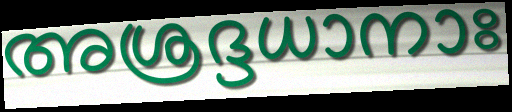
അശ്രദ്ദധാനാഃ